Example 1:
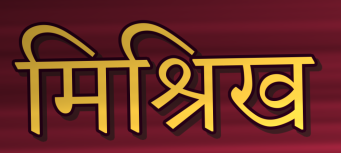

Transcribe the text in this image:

मिश्रिख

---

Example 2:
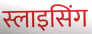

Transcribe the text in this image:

स्लाइसिंग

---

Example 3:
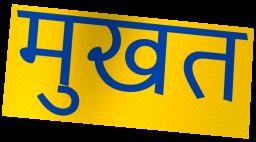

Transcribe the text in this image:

मुखत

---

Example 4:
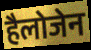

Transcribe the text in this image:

हैलोजेन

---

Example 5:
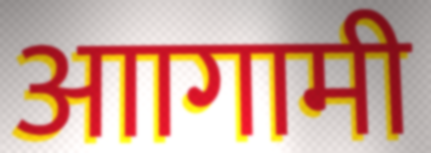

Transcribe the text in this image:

आागामी